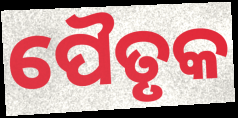
ପୈତୃକ